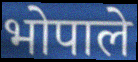
भोपाले